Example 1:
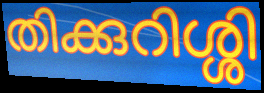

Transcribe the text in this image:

തിക്കുറിശ്ശി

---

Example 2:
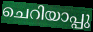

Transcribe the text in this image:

ചെറിയാപ്പു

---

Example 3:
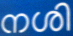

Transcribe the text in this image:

നശി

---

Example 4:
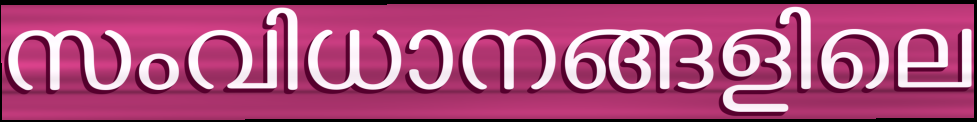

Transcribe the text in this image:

സംവിധാനങ്ങളിലെ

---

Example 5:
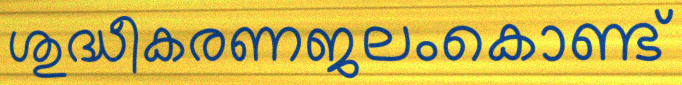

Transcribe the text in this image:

ശുദ്ധീകരണജലംകൊണ്ട്